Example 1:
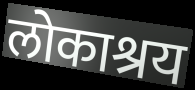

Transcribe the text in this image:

लोकाश्रय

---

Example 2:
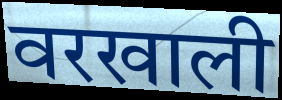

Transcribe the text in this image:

वरखाली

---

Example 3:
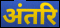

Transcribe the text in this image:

अंतरि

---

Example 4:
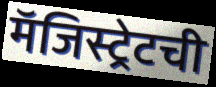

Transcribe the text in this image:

मॅजिस्ट्रेटची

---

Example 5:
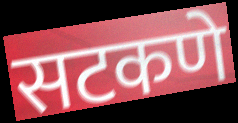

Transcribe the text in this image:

सटकणे